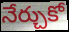
నేర్చుకో